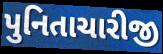
પુનિતાચારીજી